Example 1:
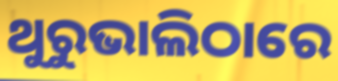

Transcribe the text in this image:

ଥୁରୁଭାଲିଠାରେ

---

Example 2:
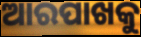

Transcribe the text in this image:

ଆରପାଖକୁ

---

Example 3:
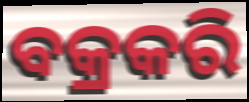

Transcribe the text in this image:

ବକ୍ରକରି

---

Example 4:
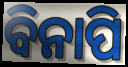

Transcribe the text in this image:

ବିନାପି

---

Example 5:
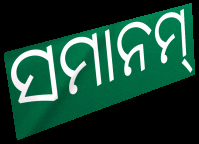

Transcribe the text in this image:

ସମାନମ୍